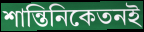
শান্তিনিকেতনই